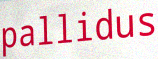
pallidus